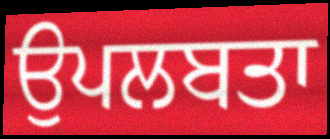
ਉਪਲਬਤਾ